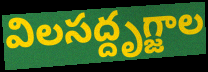
విలసద్దృగ్జాల